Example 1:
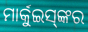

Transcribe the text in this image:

ମାର୍କୁଇସ୍‍ଙ୍କର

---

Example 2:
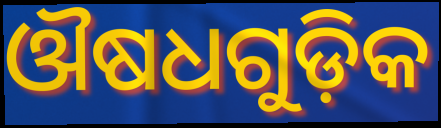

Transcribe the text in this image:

ଔଷଧଗୁଡ଼ିକ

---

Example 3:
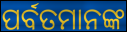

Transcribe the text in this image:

ପର୍ବତମାନଙ୍କ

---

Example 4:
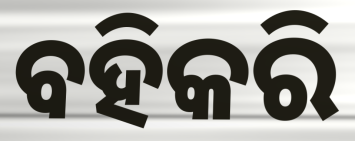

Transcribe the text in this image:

ବହିକରି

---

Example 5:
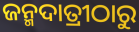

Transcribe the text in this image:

ଜନ୍ମଦାତ୍ରୀଠାରୁ